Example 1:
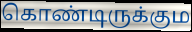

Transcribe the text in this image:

கொண்டிருக்கும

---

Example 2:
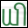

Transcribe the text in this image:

யி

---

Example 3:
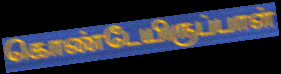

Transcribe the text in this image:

கொண்டேயிருப்பாள்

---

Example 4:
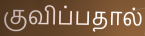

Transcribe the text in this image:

குவிப்பதால்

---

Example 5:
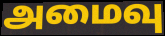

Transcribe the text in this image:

அமைவு